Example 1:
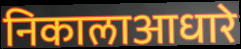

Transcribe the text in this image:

निकालाआधारे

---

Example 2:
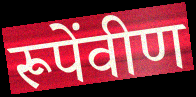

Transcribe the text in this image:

रूपेंवीण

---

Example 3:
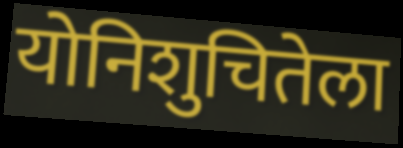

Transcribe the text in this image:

योनिशुचितेला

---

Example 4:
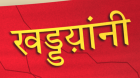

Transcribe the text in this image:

खड्डय़ांनी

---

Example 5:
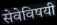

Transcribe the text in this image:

सेवेविषयी